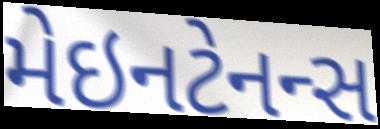
મેઇનટેનન્સ